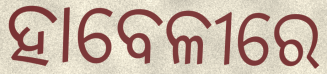
ହାବେଳୀରେ